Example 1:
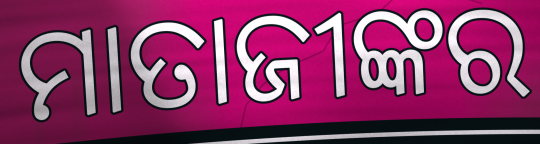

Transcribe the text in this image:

ମାତାଜୀଙ୍କର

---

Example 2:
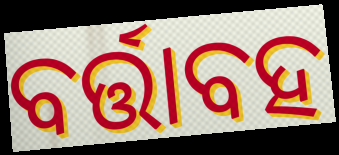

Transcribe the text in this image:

ବର୍ତ୍ତାବହ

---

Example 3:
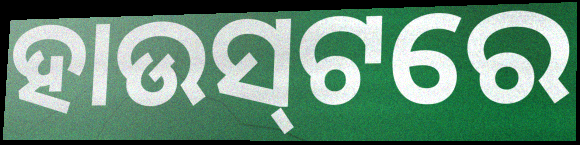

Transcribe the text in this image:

ହାଉସ୍‌ଟରେ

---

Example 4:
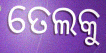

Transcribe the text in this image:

ତେଲକୁ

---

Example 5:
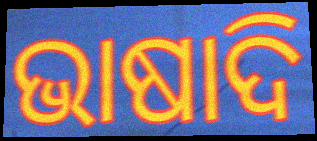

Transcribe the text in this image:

ଭାଷାଦି